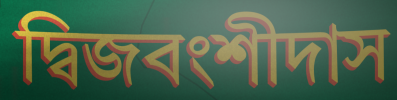
দ্বিজবংশীদাস